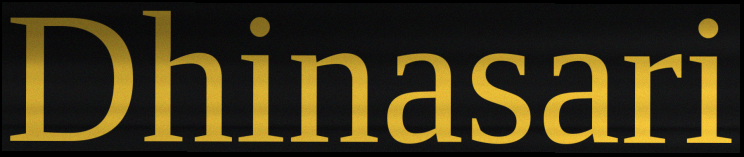
Dhinasari